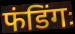
फंडिंगः